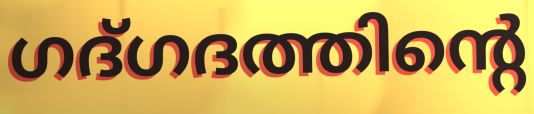
ഗദ്ഗദത്തിന്റെ